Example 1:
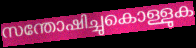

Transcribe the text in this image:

സന്തോഷിച്ചുകൊള്ളുക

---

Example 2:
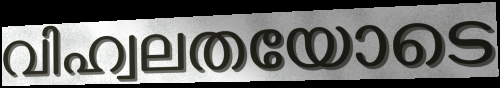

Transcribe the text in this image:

വിഹ്വലതയോടെ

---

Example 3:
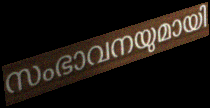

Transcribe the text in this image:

സംഭാവനയുമായി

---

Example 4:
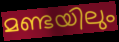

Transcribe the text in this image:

മണ്ടയിലും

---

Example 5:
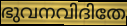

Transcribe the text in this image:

ഭുവനവിദിതേ